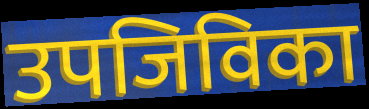
उपजिविका